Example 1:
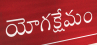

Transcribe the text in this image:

యోగక్షేమం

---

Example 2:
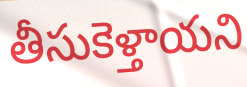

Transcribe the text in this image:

తీసుకెళ్తాయని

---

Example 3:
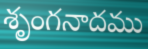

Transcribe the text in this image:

శృంగనాదము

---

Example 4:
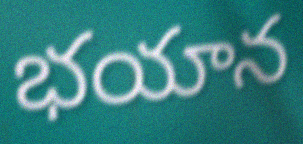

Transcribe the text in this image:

భయాన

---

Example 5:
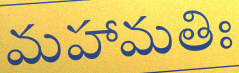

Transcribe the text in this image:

మహామతిః